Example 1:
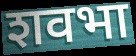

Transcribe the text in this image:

शवभा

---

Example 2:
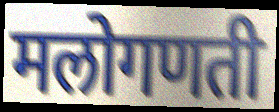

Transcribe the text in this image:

मलोगणती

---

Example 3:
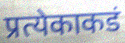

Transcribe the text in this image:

प्रत्येकाकडं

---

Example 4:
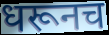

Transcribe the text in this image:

धरूनच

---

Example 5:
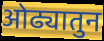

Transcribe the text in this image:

ओढ्यातुन